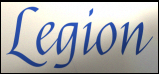
Legion